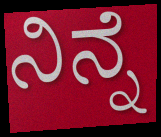
ನಿನ್ನೆ